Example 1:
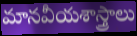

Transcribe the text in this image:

మానవీయశాస్త్రాలు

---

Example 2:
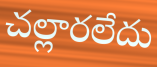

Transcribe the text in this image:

చల్లారలేదు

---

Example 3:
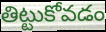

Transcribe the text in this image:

తిట్టుకోవడం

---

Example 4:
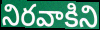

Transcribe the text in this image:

నిరవాకిని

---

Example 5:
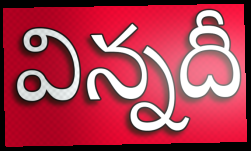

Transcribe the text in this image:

విన్నదీ